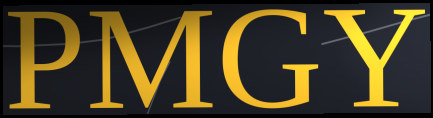
PMGY